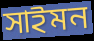
সাইমন